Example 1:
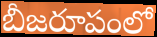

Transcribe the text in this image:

బీజరూపంలో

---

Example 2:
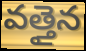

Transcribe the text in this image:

వత్తైన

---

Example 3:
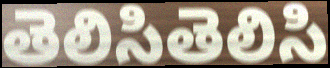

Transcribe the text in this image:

తెలిసితెలిసి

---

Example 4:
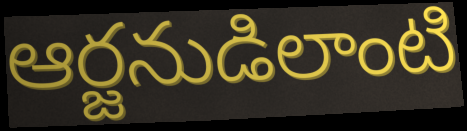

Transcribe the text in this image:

ఆర్జనుడిలాంటి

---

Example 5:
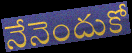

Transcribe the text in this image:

నేనెందుకో